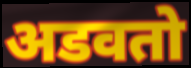
अडवतो